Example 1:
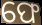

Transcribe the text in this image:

ଫେ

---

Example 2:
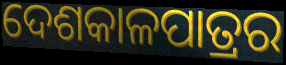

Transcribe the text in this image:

ଦେଶକାଳପାତ୍ରର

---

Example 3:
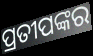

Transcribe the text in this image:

ପ୍ରତୀପଙ୍କର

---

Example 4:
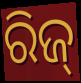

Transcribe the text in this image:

ରିଜ୍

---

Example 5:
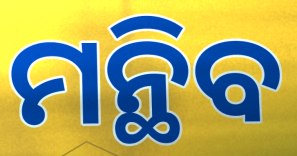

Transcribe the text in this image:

ମନ୍ଥିବ